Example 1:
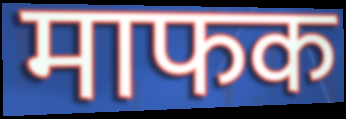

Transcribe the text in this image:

माफक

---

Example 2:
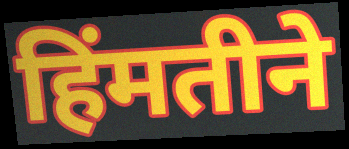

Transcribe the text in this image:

हिंमतीने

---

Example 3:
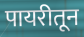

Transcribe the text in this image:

पायरीतून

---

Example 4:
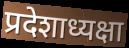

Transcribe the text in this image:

प्रदेशाध्यक्षा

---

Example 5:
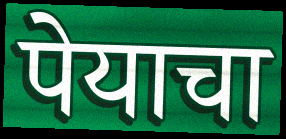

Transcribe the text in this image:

पेयाचा